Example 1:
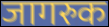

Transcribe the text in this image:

जागरुक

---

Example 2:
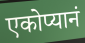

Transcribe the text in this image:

एकोप्यानं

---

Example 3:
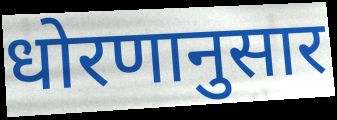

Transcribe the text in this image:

धोरणानुसार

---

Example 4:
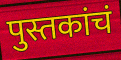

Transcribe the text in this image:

पुस्तकांचं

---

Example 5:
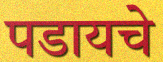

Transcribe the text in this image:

पडायचे